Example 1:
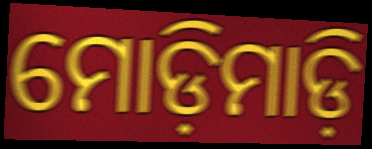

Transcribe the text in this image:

ମୋଡ଼ିମାଡ଼ି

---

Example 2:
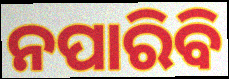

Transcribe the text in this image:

ନପାରିବି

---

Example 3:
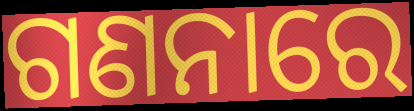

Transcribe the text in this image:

ଗଣନାରେ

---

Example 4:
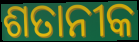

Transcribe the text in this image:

ଶତାନୀକ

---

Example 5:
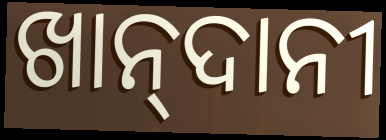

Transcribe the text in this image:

ଖାନ୍‍ଦାନୀ